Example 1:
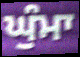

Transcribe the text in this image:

ਘੁੰਮਾ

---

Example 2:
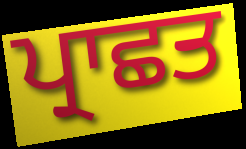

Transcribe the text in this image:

ਪ੍ਰਾਛਤ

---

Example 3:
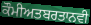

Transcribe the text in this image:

ਕੌਮੀਅਤਬਰਤਾਨਵੀ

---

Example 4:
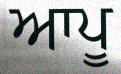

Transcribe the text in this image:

ਆਪੂ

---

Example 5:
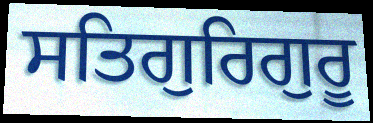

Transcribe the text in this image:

ਸਤਿਗੁਰਿਗੁਰੂ